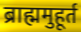
ब्राह्ममुहूर्त